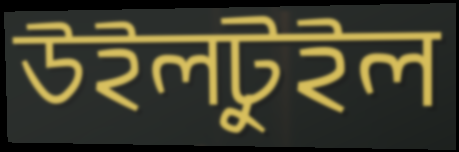
উইলটুইল